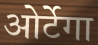
ओर्टेगा